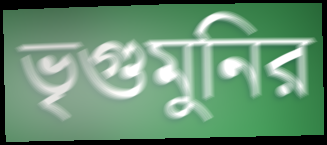
ভৃগুমুনির